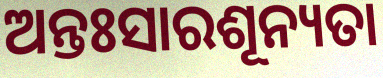
ଅନ୍ତଃସାରଶୂନ୍ୟତା